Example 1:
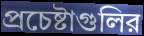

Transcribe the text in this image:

প্রচেষ্টাগুলির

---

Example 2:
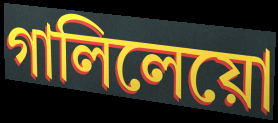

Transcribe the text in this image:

গালিলেয়ো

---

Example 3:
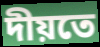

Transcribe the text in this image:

দীয়তে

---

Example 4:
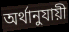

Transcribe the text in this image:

অর্থানুযায়ী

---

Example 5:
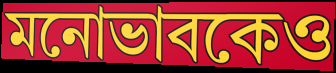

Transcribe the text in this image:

মনোভাবকেও